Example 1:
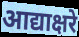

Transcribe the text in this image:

आद्याक्षरे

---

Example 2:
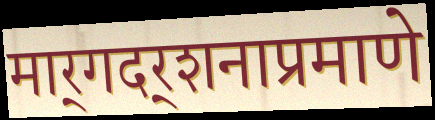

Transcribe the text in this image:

मार्गदर्शनाप्रमाणे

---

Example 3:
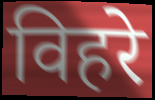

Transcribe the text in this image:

विहरे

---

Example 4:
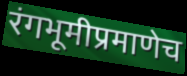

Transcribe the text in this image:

रंगभूमीप्रमाणेच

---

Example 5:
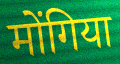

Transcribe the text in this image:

मोंगिया